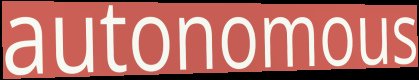
autonomous